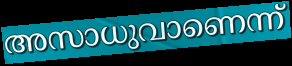
അസാധുവാണെന്ന്